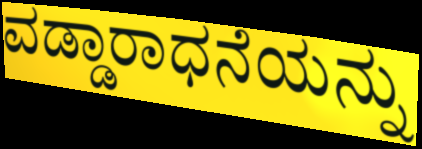
ವಡ್ಡಾರಾಧನೆಯನ್ನು